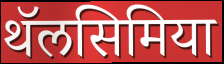
थॅलसिमिया